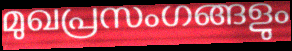
മുഖപ്രസംഗങ്ങളും